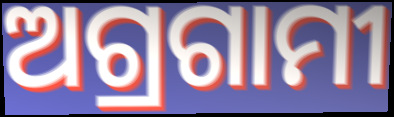
ଅଗ୍ରଗାମୀ